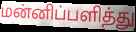
மன்னிப்பளித்து